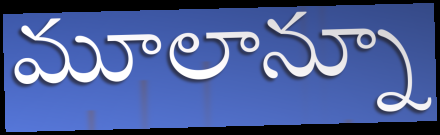
మూలాన్నూ